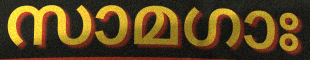
സാമഗാഃ